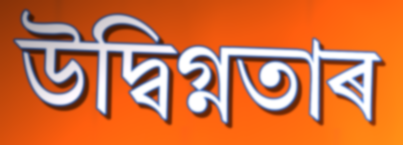
উদ্বিগ্নতাৰ